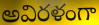
అవిరళంగా